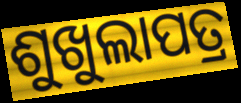
ଶୁଖୁଲାପତ୍ର